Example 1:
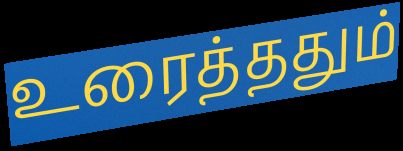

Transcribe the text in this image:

உரைத்ததும்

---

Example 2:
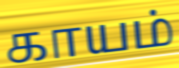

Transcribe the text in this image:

காயம்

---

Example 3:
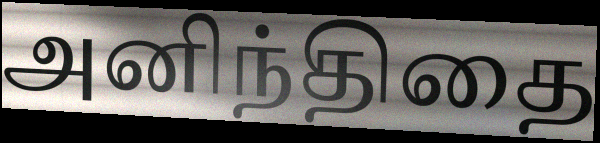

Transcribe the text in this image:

அனிந்திதை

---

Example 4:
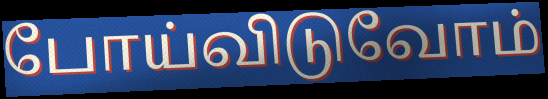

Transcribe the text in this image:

போய்விடுவோம்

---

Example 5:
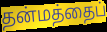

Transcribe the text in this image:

தன்மத்தைப்